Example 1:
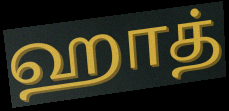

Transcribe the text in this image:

ஹாத்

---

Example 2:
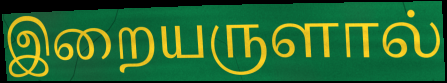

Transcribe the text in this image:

இறையருளால்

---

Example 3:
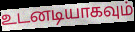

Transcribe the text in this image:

உடனடியாகவும்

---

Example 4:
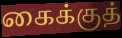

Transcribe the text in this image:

கைக்குத்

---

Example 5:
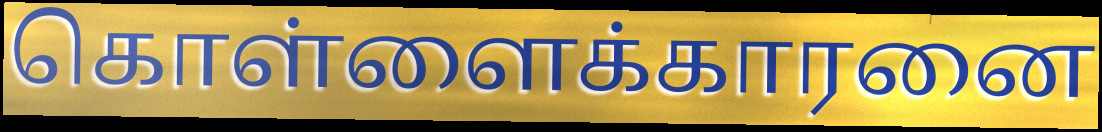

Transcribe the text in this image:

கொள்ளைக்காரனை